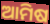
ଆମିଷ